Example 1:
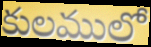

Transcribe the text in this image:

కులములో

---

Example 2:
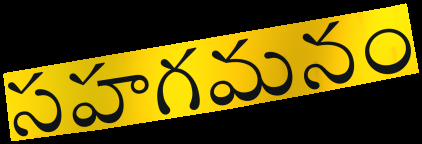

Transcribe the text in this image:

సహగమనం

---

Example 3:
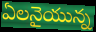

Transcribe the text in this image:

ఏలనైయున్న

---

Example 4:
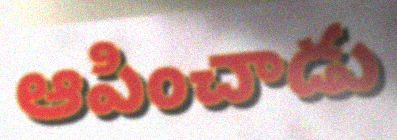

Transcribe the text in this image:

ఆపించాడు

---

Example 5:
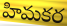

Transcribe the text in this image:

హిమకర